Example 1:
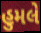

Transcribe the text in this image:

હુમલે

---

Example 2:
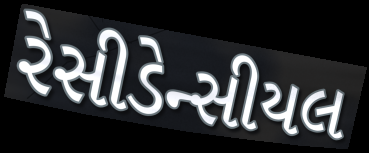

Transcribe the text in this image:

રેસીડેન્સીયલ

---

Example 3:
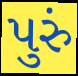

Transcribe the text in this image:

પુરું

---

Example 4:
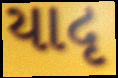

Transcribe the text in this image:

યાદૃ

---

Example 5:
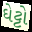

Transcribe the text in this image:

ઘેટ્ટો